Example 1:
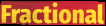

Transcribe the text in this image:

Fractional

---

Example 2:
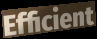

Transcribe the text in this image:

Efficient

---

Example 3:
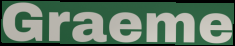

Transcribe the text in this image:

Graeme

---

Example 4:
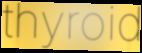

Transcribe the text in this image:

thyroid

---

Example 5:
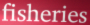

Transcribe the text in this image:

fisheries